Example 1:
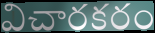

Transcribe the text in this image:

విచారకరం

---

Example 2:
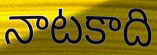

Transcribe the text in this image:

నాటకాది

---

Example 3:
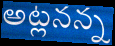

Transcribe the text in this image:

అట్లనన్న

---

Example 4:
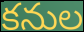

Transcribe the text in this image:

కనుల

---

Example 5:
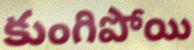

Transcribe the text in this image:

కుంగిపోయి